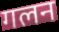
गलन